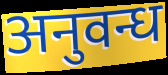
अनुवन्ध